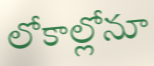
లోకాల్లోనూ